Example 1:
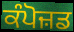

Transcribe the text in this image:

ਕੰਪੋਜ਼ਡ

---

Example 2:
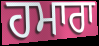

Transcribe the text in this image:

ਹਮਾਰਾ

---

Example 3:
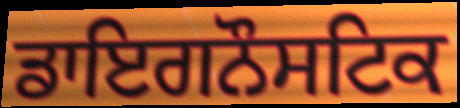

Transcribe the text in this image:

ਡਾਇਗਨੌਸਟਿਕ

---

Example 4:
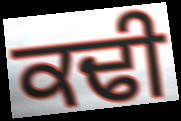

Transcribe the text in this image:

ਕਢੀ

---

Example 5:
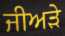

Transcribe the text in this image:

ਜੀਅੜੇ